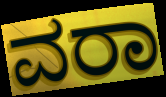
ವರಾ